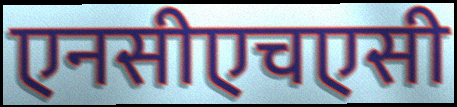
एनसीएचएसी